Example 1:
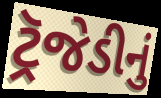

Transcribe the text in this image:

ટ્રૅજેડીનું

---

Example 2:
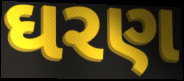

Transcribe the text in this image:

ઘરણ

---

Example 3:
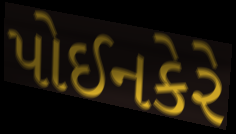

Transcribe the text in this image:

પોઈનકેરે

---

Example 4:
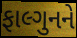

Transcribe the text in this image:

ફાલ્ગુનને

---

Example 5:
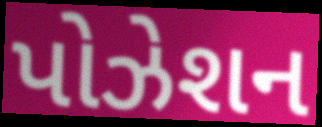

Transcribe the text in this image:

પોઝેશન